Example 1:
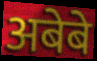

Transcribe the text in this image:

अबेबे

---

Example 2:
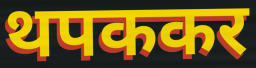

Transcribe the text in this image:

थपककर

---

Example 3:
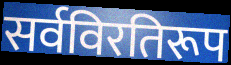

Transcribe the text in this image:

सर्वविरतिरूप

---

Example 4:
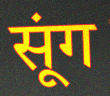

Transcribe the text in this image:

सूंग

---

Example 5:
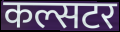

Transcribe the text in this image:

कल्सटर